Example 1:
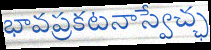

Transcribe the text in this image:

భావప్రకటనాస్వేచ్ఛ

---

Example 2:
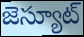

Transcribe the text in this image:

జెస్యూట్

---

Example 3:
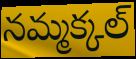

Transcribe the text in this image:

నమ్మక్కల్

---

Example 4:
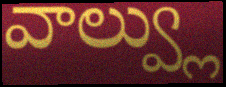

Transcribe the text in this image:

వాల్వ్లు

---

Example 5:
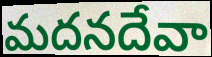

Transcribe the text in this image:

మదనదేవా